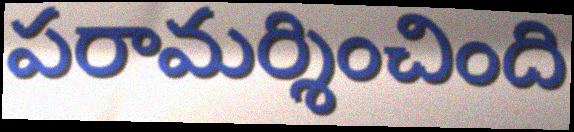
పరామర్శించింది